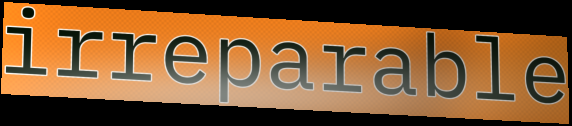
irreparable